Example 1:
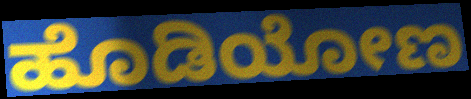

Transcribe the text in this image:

ಹೊಡಿಯೋಣ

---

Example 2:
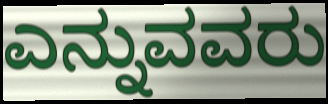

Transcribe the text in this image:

ಎನ್ನುವವರು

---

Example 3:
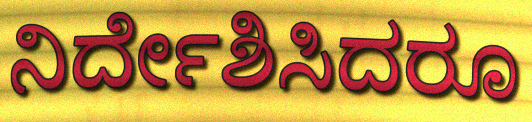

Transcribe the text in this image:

ನಿರ್ದೇಶಿಸಿದರೂ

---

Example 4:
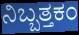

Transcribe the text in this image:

ನಿಬ್ಬತ್ತಕಂ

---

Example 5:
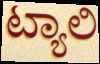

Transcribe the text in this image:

ಟ್ಯಾಲಿ